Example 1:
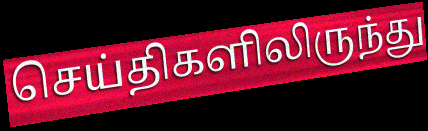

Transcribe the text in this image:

செய்திகளிலிருந்து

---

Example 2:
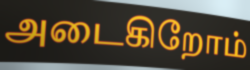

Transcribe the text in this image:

அடைகிறோம்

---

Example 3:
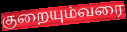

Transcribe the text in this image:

குறையும்வரை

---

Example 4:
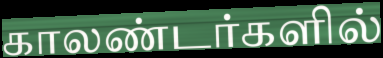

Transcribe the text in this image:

காலண்டர்களில்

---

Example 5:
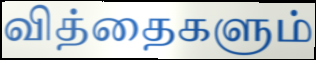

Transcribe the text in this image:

வித்தைகளும்